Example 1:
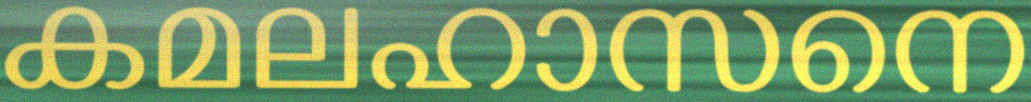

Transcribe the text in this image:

കമലഹാസനെ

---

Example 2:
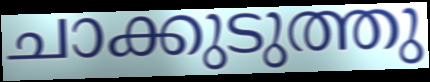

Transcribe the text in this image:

ചാക്കുടുത്തു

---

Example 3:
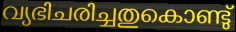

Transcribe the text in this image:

വ്യഭിചരിച്ചതുകൊണ്ടു്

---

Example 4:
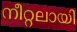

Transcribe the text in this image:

നീറ്റലായി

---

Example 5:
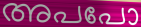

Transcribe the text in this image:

അപപോ